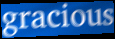
gracious